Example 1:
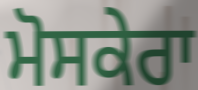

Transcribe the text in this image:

ਮੋਸਕੇਰਾ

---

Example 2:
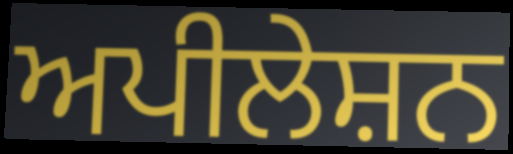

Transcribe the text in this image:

ਅਪੀਲੇਸ਼ਨ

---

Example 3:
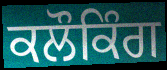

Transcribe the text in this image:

ਕਲੌਕਿੰਗ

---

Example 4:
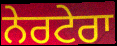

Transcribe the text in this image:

ਨੇਰਟੇਰਾ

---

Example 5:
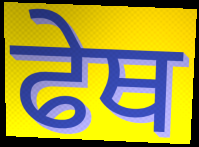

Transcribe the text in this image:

ਫੇਥ